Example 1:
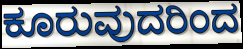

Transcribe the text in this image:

ಕೂರುವುದರಿಂದ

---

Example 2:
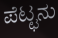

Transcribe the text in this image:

ಪೆಟ್ಟನು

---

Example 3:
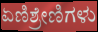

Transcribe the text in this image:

ಏಣಿಶ್ರೇಣಿಗಳು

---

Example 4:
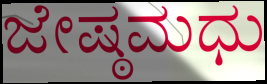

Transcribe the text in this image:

ಜೇಷ್ಠಮಧು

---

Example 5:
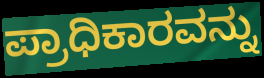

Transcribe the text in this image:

ಪ್ರಾಧಿಕಾರವನ್ನು